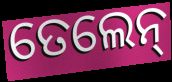
ତେଲେନ୍